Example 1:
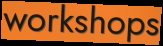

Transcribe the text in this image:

workshops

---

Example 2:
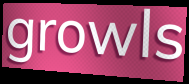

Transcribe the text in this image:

growls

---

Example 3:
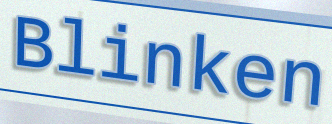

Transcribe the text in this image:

Blinken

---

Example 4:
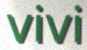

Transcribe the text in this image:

vivi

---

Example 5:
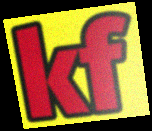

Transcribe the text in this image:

kf